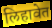
लिहावेत